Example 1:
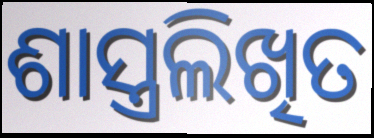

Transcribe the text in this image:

ଶାସ୍ତ୍ରଲିଖିତ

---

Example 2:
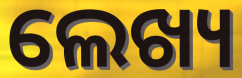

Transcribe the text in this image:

ଲେଖ୍ୟ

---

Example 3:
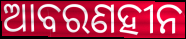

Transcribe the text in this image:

ଆବରଣହୀନ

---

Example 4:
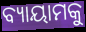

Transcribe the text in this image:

ବ୍ୟାୟାମକୁ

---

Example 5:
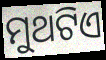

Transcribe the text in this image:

ମୁଥଟିଏ